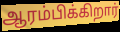
ஆரம்பிக்கிறார்